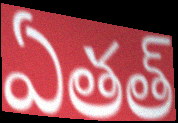
ఏతత్